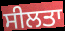
ਸੀਲਤਾ